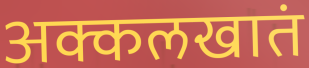
अक्कलखातं